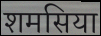
शमसिया